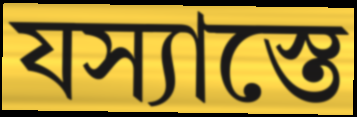
যস্যাস্তে